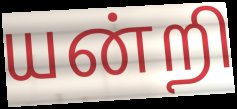
யன்றி